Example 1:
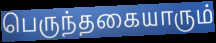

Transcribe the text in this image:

பெருந்தகையாரும்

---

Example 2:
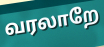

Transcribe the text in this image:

வரலாறே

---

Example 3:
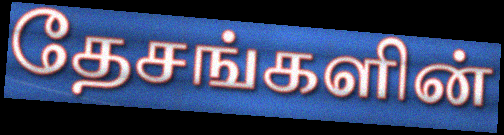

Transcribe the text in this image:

தேசங்களின்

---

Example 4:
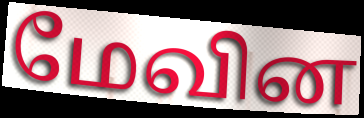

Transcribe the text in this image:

மேவின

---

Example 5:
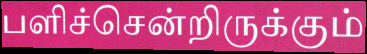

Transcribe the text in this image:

பளிச்சென்றிருக்கும்